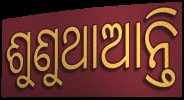
ଶୁଣୁଥାଆନ୍ତି